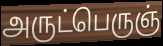
அருட்பெருஞ்